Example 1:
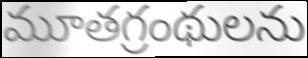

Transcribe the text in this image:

మూతగ్రంథులను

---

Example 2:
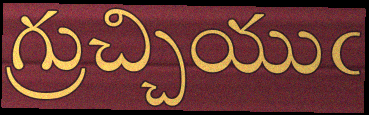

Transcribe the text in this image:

గ్రుచ్చియుఁ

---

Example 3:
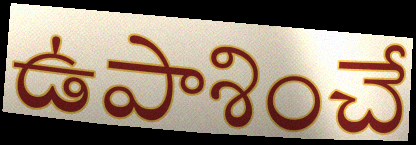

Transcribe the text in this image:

ఉపాశించే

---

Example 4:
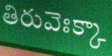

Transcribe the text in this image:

తిరువెఃక్కా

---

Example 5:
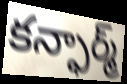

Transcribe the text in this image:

కన్ఫార్మ్